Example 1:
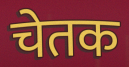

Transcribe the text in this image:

चेतक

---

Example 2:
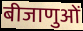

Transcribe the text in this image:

बीजाणुओं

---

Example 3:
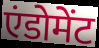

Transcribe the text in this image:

एंडोमेंट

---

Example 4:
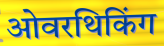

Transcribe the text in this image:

ओवरथिकिंग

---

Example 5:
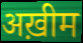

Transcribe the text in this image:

अख़ीम